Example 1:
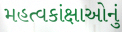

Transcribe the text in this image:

મહત્વકાંક્ષાઓનું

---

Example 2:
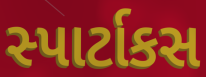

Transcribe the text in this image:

સ્પાર્ટાકસ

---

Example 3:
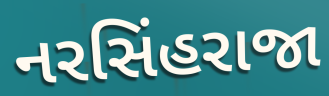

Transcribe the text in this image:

નરસિંહરાજા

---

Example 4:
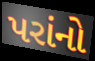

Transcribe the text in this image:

પરાંનો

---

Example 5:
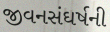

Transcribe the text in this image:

જીવનસંઘર્ષની